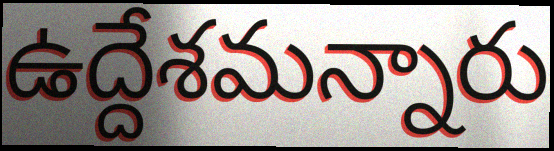
ఉద్దేశమన్నారు